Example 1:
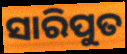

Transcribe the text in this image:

ସାରିପୁତ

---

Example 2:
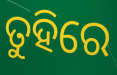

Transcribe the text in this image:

ତୁହିରେ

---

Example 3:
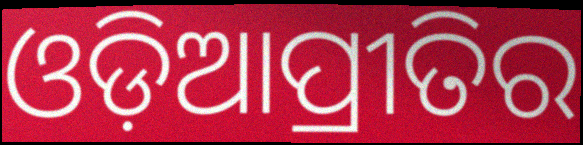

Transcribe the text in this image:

ଓଡ଼ିଆପ୍ରୀତିର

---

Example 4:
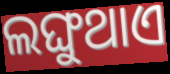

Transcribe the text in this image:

ଲଙ୍ଘୁଥାଏ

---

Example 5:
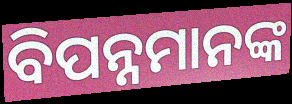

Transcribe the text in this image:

ବିପନ୍ନମାନଙ୍କ